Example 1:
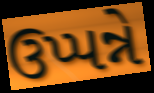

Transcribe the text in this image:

ઉપ્પન્ને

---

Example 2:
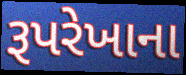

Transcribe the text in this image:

રૂપરેખાના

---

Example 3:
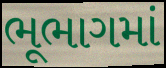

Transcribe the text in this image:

ભૂભાગમાં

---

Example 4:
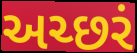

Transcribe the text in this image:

અચ્છરં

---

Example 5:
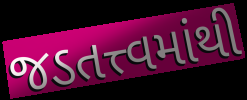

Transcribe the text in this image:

જડતત્ત્વમાંથી